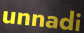
unnadi